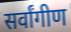
सर्वांगीण